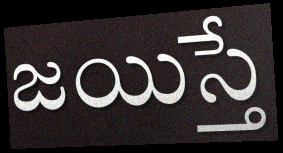
జయిస్తే